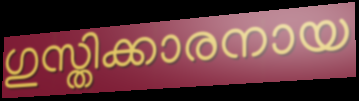
ഗുസ്തിക്കാരനായ